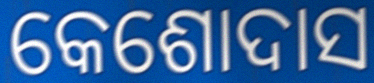
କେଶୋଦାସ